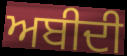
ਅਬੀਦੀ